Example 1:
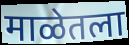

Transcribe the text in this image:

माळेतला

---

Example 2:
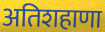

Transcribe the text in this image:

अतिशहाणा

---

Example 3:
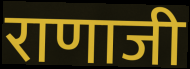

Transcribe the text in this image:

राणाजी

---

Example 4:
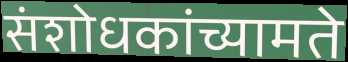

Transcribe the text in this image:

संशोधकांच्यामते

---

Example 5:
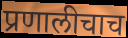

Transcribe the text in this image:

प्रणालीचाच